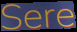
Sere